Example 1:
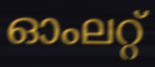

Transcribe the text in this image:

ഓംലറ്റ്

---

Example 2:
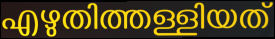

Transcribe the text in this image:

എഴുതിത്തള്ളിയത്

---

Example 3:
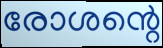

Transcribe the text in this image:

രോശന്റെ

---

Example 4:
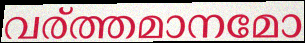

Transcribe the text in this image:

വര്ത്തമാനമോ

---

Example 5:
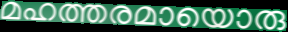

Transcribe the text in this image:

മഹത്തരമായൊരു